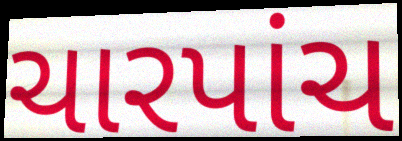
ચારપાંચ